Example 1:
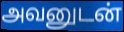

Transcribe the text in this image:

அவனுடன்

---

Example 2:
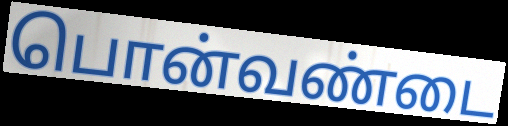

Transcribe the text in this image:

பொன்வண்டை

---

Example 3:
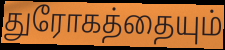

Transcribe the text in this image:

துரோகத்தையும்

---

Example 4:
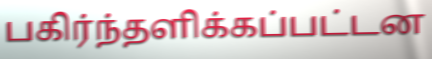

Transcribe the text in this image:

பகிர்ந்தளிக்கப்பட்டன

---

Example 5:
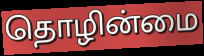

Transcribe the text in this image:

தொழின்மை